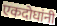
एकदोघांनी